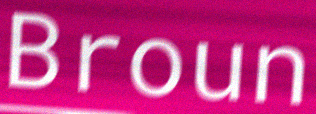
Broun